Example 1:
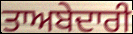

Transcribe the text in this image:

ਤਾਅਬੇਦਾਰੀ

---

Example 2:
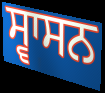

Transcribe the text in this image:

ਸ੍ਵਾਸਨ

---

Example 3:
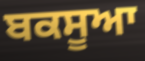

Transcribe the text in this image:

ਬਕਸੂਆ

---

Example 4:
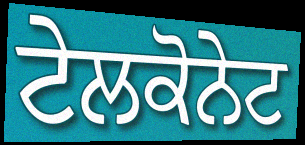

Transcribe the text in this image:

ਟੇਲਕੋਨੇਟ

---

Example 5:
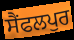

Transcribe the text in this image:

ਸੈਂਫਲਪੁਰ